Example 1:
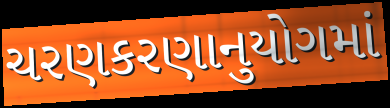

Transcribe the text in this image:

ચરણકરણાનુયોગમાં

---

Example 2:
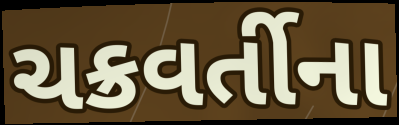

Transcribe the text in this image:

ચક્રવર્તીના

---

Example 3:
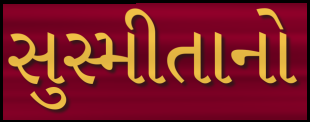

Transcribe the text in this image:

સુસ્મીતાનો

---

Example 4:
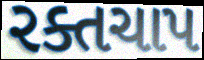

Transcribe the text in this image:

રક્તચાપ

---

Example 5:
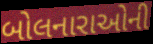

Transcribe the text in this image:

બોલનારાઓની